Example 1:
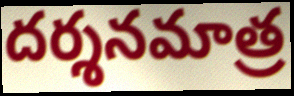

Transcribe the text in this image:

దర్శనమాత్ర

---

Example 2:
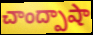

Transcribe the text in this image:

చాంద్పాషా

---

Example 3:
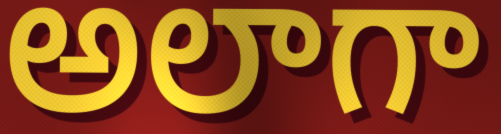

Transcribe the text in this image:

అలాగా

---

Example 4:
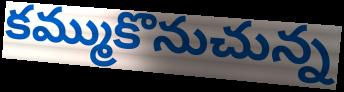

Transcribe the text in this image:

కమ్ముకొనుచున్న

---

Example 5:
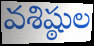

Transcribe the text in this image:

వశిష్ఠుల